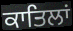
ਕਾਤਿਲਾਂ